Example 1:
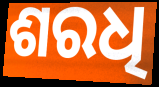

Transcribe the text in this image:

ଶରଧି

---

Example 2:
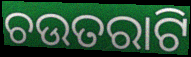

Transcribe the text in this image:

ଚଉତରାଟି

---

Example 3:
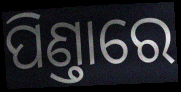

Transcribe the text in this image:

ପିଣ୍ତାରେ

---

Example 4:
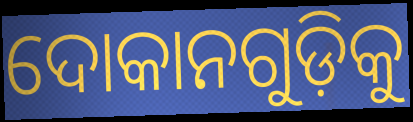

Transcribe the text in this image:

ଦୋକାନଗୁଡ଼ିକୁ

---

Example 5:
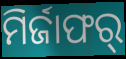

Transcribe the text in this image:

ମିର୍ଜାଫର୍